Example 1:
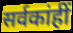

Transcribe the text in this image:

सर्वकांहीं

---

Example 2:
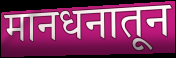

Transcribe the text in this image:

मानधनातून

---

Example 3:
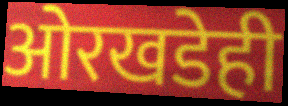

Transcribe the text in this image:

ओरखडेही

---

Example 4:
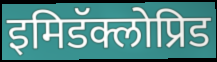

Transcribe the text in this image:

इमिडॅक्लोप्रिड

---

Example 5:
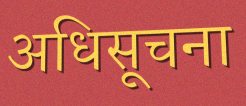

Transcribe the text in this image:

अधिसूचना